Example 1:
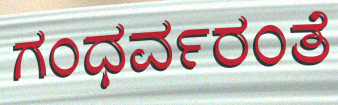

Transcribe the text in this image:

ಗಂಧರ್ವರಂತೆ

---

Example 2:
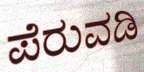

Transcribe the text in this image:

ಪೆರುವಡಿ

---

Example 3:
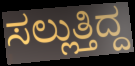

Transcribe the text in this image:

ಸಲ್ಲುತ್ತಿದ್ದ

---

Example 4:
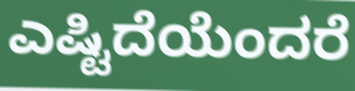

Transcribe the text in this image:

ಎಷ್ಟಿದೆಯೆಂದರೆ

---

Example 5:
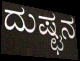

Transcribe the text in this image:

ದುಷ್ಟನ